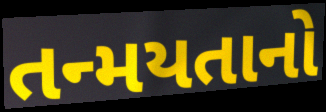
તન્મયતાનો